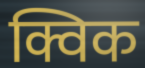
क्विक